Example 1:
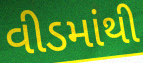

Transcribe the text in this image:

વીડમાંથી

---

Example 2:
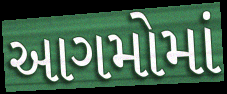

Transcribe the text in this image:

આગમોમાં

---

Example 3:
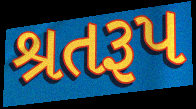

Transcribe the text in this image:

શ્રતરૂપ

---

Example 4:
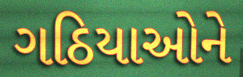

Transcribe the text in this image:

ગઠિયાઓને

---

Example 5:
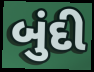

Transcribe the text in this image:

બુંદી